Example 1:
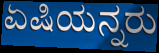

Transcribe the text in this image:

ಏಷಿಯನ್ನರು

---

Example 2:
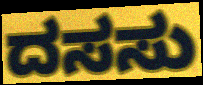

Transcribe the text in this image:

ದಸಸು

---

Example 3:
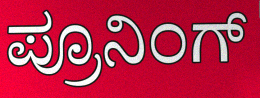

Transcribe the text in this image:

ಪ್ರೂನಿಂಗ್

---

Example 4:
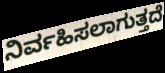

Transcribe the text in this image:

ನಿರ್ವಹಿಸಲಾಗುತ್ತದೆ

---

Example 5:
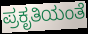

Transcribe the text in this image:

ಪ್ರಕೃತಿಯಂತೆ